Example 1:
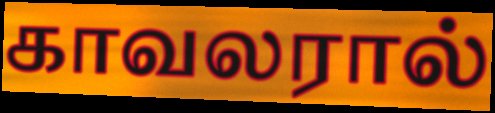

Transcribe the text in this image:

காவலரால்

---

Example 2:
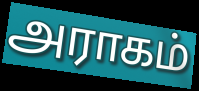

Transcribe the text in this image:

அராகம்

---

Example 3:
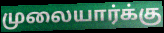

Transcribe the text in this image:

முலையார்க்கு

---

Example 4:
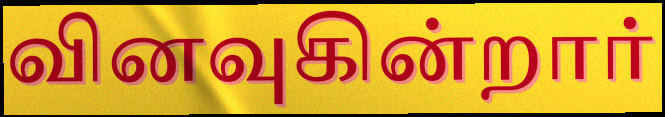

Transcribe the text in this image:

வினவுகின்றார்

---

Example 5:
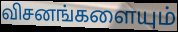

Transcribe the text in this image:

விசனங்களையும்